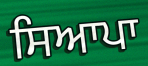
ਸਿਆਪਾ